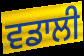
ਵਡਾਲੀ